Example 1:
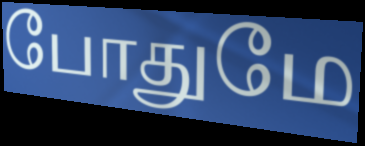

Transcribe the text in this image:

போதுமே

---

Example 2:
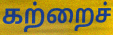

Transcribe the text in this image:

கற்றைச்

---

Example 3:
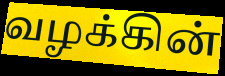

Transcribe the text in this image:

வழக்கின்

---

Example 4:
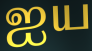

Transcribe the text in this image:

ஐய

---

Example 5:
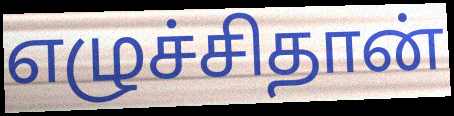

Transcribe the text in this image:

எழுச்சிதான்